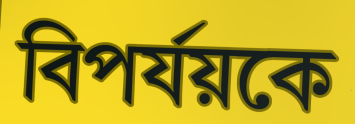
বিপর্যয়কে